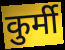
कुर्मी